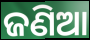
ଜଣିଆ